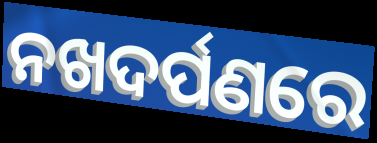
ନଖଦର୍ପଣରେ